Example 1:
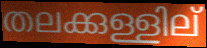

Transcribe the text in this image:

തലക്കുള്ളില്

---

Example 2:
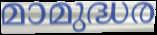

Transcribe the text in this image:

മാമുദ്ധര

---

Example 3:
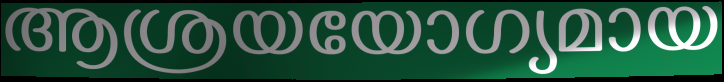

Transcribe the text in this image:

ആശ്രയയോഗ്യമായ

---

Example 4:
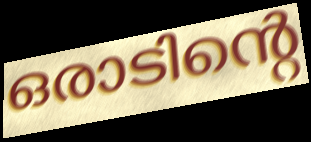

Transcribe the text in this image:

ഒരാടിന്റെ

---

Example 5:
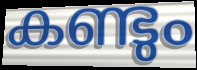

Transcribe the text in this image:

കണ്ടും